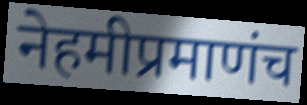
नेहमीप्रमाणंच